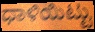
ಧಾಳಿಯಿಟ್ಟು